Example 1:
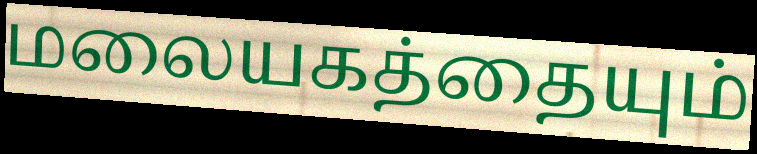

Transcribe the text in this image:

மலையகத்தையும்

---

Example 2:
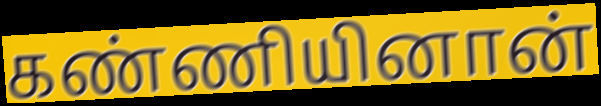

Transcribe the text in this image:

கண்ணியினான்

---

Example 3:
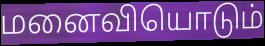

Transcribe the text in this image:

மனைவியொடும்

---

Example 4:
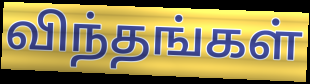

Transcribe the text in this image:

விந்தங்கள்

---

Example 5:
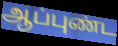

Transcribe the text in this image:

ஆப்புண்ட